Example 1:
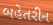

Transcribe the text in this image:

બહેતરીન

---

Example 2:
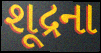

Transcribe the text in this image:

શૂદ્રના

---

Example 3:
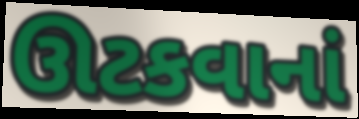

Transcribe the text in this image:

ઊટકવાનાં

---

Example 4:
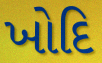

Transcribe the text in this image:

ખોદિ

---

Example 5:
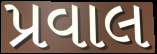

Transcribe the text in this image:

પ્રવાલ